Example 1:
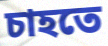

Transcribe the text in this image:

চাহতে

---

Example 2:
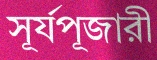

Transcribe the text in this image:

সূর্যপূজারী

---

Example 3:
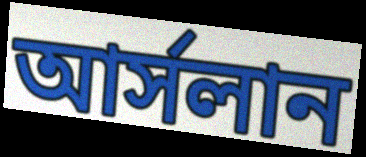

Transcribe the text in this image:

আর্সলান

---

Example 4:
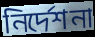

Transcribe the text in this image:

নির্দেশনা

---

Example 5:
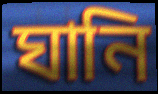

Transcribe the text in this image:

ঘানি